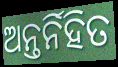
ଅନ୍ତର୍ନିହିତ